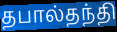
தபால்தந்தி